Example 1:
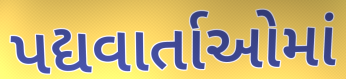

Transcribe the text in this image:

પદ્યવાર્તાઓમાં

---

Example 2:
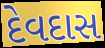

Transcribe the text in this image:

દેવદાસ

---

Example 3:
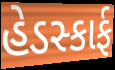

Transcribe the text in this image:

હેડસ્કાર્ફ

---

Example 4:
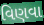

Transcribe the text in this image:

વિણવા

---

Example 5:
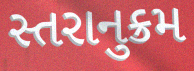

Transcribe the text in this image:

સ્તરાનુક્રમ